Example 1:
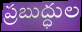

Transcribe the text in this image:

ప్రబుద్ధుల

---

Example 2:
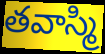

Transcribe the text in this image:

తవాస్మి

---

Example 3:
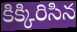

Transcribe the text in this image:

కిక్కిరిసిన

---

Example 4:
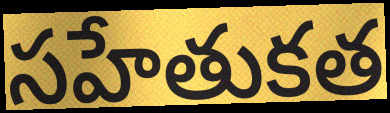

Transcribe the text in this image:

సహేతుకత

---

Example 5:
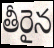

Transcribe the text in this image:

తీరైన